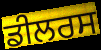
ਡੀਲਰਸ